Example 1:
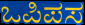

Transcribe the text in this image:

ಒಪಿಪಸ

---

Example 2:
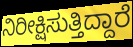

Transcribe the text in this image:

ನಿರೀಕ್ಷಿಸುತ್ತಿದ್ದಾರೆ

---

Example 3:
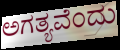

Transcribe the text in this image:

ಅಗತ್ಯವೆಂದು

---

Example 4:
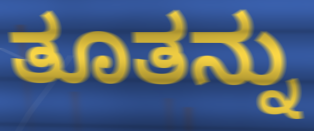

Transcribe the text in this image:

ತೂತನ್ನು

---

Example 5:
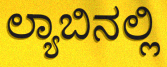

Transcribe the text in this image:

ಲ್ಯಾಬಿನಲ್ಲಿ